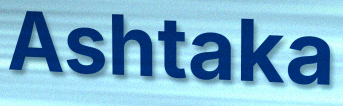
Ashtaka